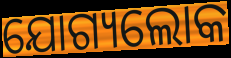
ଯୋଗ୍ୟଲୋକ